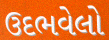
ઉદભવેલો